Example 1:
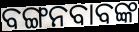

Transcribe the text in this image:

ବଙ୍ଗନବାବଙ୍କ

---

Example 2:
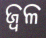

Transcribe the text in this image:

ଜ୍ୱଳ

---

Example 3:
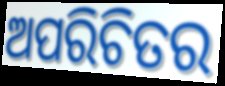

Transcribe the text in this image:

ଅପରିଚିତର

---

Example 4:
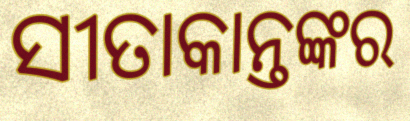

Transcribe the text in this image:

ସୀତାକାନ୍ତଙ୍କର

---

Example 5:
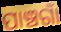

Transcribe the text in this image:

ପାଞ୍ଚଗାଁ